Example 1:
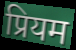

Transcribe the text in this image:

प्रियम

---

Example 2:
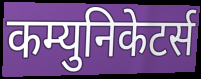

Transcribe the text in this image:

कम्युनिकेटर्स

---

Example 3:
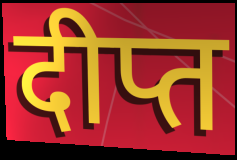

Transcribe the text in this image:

दीप्त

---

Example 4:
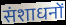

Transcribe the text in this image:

संशाधनों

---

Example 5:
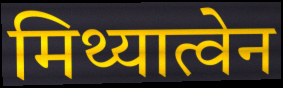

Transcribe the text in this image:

मिथ्यात्वेन